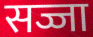
सज्जा